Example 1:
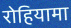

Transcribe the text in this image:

रोहियामा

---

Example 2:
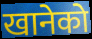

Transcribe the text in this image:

खानेको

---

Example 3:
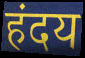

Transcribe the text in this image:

हंदय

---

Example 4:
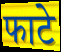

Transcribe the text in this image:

फाटे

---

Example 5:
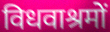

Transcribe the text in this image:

विधवाश्रमों